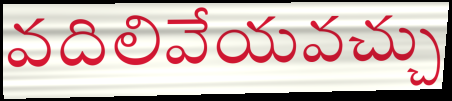
వదిలివేయవచ్చు